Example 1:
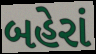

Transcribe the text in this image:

બહેરાં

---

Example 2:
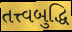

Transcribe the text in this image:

તત્ત્વબુદ્ધિ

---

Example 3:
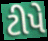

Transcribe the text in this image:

ટીપે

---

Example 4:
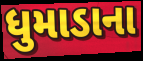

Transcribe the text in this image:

ધુમાડાના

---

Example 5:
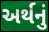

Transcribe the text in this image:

અર્થનું